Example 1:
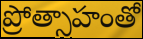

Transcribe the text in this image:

ప్రోత్సాహంతో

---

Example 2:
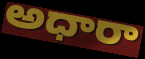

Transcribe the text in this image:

అధారా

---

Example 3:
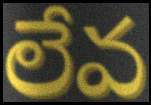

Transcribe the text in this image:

లేవ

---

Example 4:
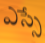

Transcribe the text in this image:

ఎస్సే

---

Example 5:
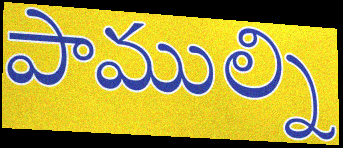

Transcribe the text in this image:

పాముల్ని